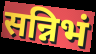
सन्निभं